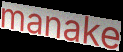
manake